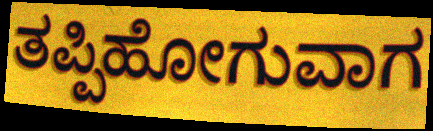
ತಪ್ಪಿಹೋಗುವಾಗ